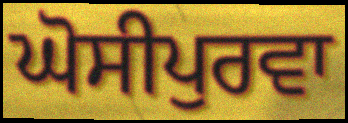
ਘੋਸੀਪੁਰਵਾ